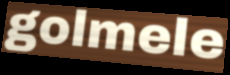
golmele